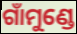
ଗାଁମୁଣ୍ଡେ